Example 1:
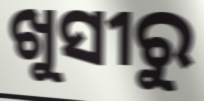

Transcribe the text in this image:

ଖୁସୀରୁ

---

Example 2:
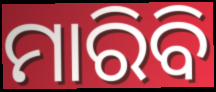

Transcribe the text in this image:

ମାରିବି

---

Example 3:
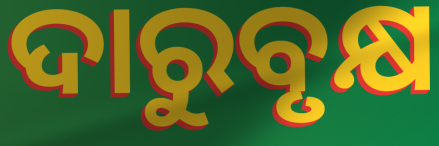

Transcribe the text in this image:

ଦାରୁବୃକ୍ଷ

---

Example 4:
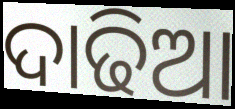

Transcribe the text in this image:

ଦାଢିଆ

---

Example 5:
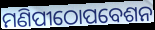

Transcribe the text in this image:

ମଣିପୀଠୋପବେଶନ